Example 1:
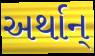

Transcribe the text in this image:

અર્થાન્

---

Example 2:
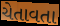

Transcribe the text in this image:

ચેતાવતા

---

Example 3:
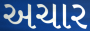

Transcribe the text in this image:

અચાર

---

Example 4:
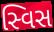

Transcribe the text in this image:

સ્વિસ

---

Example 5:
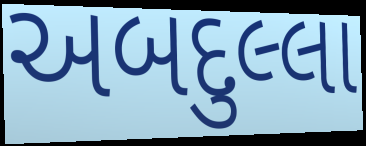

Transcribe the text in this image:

અબદુલ્લા